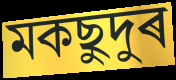
মকছুদুৰ